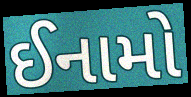
ઈનામો